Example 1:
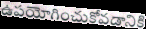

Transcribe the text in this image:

ఉపయోగించుకోవడానికి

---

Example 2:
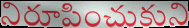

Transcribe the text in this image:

నిరూపించుకుని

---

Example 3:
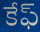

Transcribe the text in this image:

కేఫ్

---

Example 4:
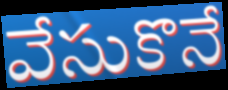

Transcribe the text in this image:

వేసుకొనే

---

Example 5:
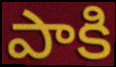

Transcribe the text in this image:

పాకి